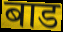
बाड